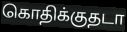
கொதிக்குதடா